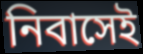
নিবাসেই